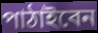
পাঠাইবেন